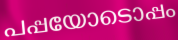
പപ്പയോടൊപ്പം